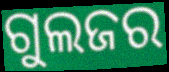
ଗୁଲଜର